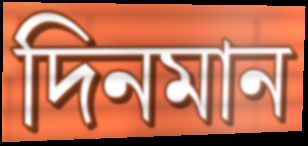
দিনমান